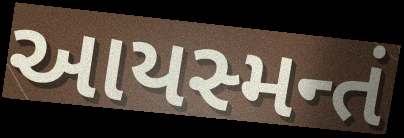
આયસ્મન્તં